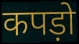
कपड़ो